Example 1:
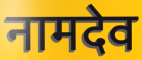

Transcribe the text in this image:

नामदेव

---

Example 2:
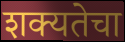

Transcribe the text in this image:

शक्यतेचा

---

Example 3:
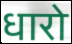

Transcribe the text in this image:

धारो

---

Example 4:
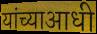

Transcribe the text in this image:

यांच्याआधी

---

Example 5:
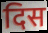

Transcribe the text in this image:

दिस